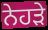
ਨੇਹੜੇ